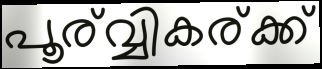
പൂര്വ്വികര്ക്ക്